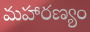
మహారణ్యం